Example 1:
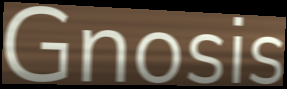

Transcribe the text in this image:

Gnosis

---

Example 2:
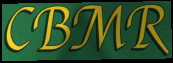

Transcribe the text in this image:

CBMR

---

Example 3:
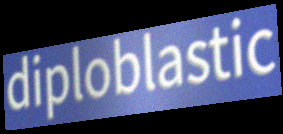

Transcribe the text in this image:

diploblastic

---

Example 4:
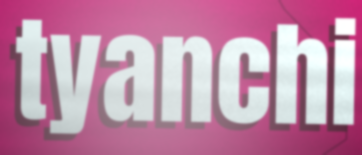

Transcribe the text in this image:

tyanchi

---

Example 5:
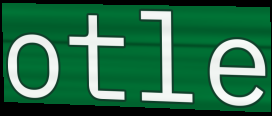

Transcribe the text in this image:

otle